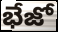
భేజో